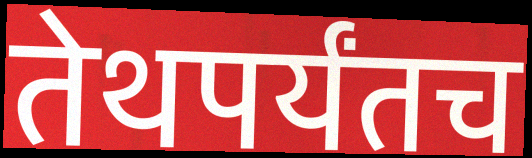
तेथपर्यंतच